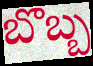
బొబ్బ